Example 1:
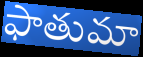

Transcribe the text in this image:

ఫాతుమా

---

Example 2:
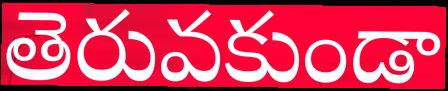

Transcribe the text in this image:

తెరువకుండా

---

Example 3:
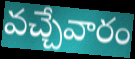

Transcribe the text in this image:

వచ్చేవారం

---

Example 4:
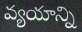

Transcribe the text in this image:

వ్యయాన్ని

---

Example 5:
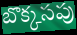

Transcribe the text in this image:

బొక్కసపు